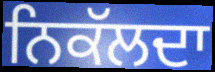
ਨਿਕੱਲਦਾ